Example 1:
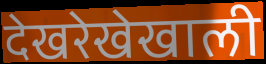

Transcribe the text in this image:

देखरेखेखाली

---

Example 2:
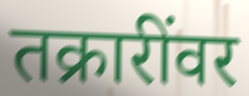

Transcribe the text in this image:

तक्रारींवर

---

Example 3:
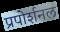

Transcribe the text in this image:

प्रपोर्शनल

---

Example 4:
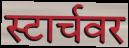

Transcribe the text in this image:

स्टार्चवर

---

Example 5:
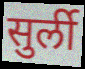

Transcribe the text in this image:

सुर्ली